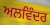
ਅਲਵਿੰਦਰ